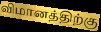
விமானத்திற்கு